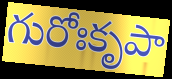
గురోఃకృపా